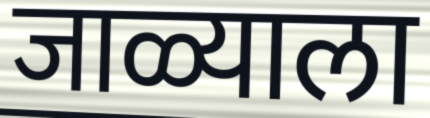
जाळ्याला